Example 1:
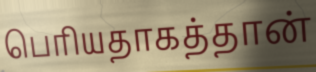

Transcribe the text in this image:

பெரியதாகத்தான்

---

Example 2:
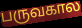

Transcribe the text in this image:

பருவகால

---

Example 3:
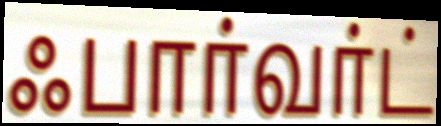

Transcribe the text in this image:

ஃபார்வர்ட்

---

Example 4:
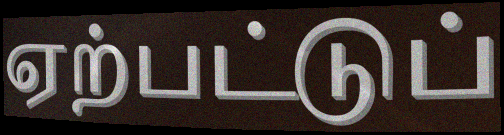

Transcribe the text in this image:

ஏற்பட்டுப்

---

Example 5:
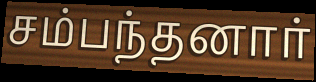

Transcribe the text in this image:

சம்பந்தனார்